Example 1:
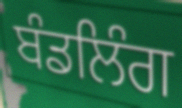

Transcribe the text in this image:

ਬੰਡਲਿੰਗ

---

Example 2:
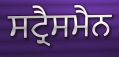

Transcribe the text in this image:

ਸਟ੍ਰੈਸਮੈਨ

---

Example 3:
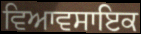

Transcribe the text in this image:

ਵਿਆਵਸਾਇਕ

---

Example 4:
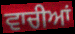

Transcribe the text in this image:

ਵਾਚੀਆਂ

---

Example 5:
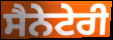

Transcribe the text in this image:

ਸੈਨੇਟੇਰੀ